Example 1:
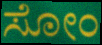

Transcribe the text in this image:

ಸೋಂ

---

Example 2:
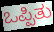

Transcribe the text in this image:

ಒಪ್ಪಿತು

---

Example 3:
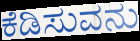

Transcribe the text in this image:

ಕೆಡಿಸುವನು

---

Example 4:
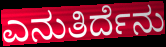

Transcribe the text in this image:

ಎನುತಿರ್ದೆನು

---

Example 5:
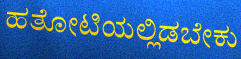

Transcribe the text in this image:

ಹತೋಟಿಯಲ್ಲಿಡಬೇಕು